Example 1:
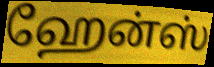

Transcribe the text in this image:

ஹேன்ஸ்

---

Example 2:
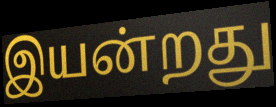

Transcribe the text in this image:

இயன்றது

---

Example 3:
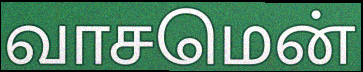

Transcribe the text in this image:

வாசமென்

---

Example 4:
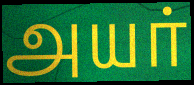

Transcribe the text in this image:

அயர்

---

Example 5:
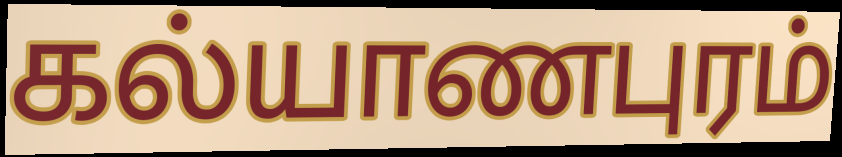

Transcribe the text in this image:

கல்யாணபுரம்